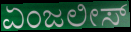
ಏಂಜಲೀಸ್